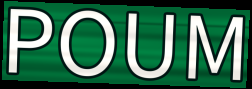
POUM